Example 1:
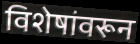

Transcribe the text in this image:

विशेषांवरून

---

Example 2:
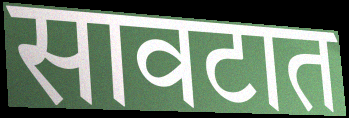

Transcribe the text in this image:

सावटात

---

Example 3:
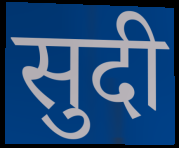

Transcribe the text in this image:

सुदी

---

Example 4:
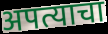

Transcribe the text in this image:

अपत्याचा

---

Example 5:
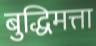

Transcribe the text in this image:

बुद्धिमत्ता